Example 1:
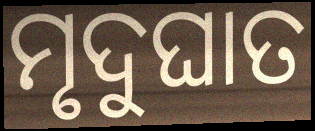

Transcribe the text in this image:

ମୃଦୁଘାତ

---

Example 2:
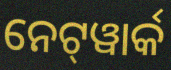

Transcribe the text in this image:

ନେଟ୍‌ୱାର୍କ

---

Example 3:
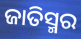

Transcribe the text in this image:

ଜାତିସ୍ମର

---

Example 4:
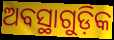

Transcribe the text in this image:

ଅବସ୍ଥାଗୁଡ଼ିକ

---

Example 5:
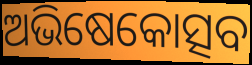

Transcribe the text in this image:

ଅଭିଷେକୋତ୍ସବ